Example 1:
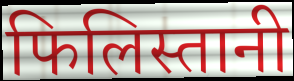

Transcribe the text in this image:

फिलिस्तानी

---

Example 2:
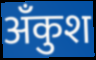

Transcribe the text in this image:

अँकुश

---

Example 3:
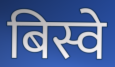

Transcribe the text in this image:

बिस्वे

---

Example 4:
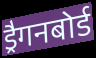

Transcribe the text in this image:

ड्रैगनबोर्ड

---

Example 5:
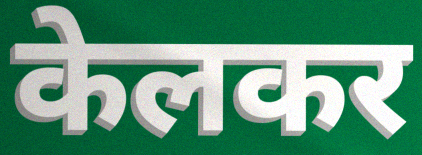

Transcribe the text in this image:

केलकर